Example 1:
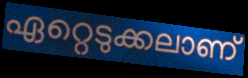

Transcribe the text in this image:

ഏറ്റെടുക്കലാണ്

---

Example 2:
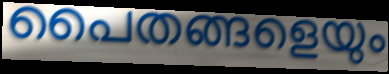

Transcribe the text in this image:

പൈതങ്ങളെയും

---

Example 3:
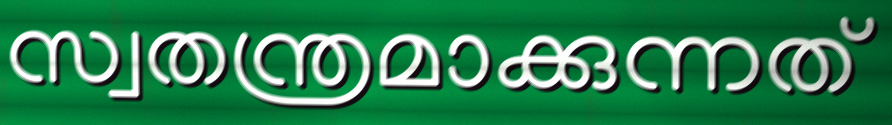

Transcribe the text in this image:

സ്വതന്ത്രമാക്കുന്നത്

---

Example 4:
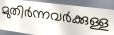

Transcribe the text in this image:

മുതിർന്നവർക്കുള്ള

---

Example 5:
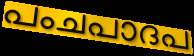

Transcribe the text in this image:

പംചപാദപ